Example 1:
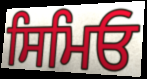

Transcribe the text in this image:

ਸਿਮਿਓ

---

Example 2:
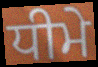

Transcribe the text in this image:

ਧੀਮੇ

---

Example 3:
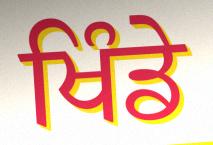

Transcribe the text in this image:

ਖਿੰਡੇ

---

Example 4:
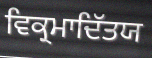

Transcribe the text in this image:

ਵਿਕ੍ਰਮਾਦਿੱਤਯ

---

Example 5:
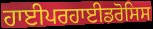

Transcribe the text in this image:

ਹਾਈਪਰਹਾਈਡਰੋਸਿਸ